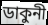
ডাকুনী